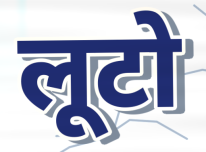
लूटो